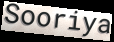
Sooriya